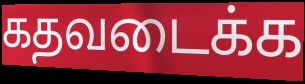
கதவடைக்க